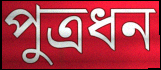
পুত্রধন